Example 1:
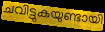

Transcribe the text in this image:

ചവിട്ടുകയുണ്ടായി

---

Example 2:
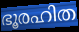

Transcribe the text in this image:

ഭൂരഹിത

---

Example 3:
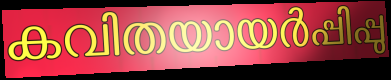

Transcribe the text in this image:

കവിതയായർപ്പിപ്പു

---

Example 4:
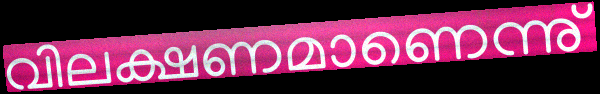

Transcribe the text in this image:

വിലക്ഷണമാണെന്നു്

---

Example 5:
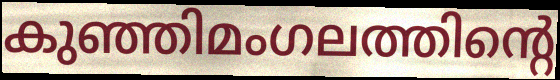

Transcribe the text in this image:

കുഞ്ഞിമംഗലത്തിന്റെ